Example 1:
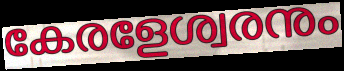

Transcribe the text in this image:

കേരളേശ്വരനും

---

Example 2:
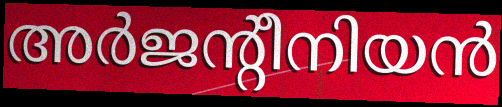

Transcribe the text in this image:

അർജന്റീനിയൻ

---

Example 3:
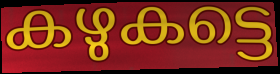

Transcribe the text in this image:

കഴുകട്ടെ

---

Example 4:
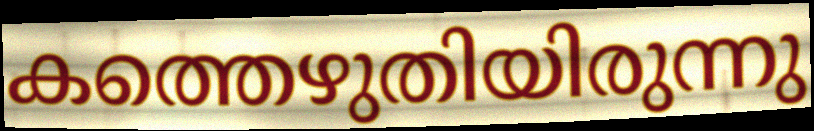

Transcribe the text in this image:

കത്തെഴുതിയിരുന്നു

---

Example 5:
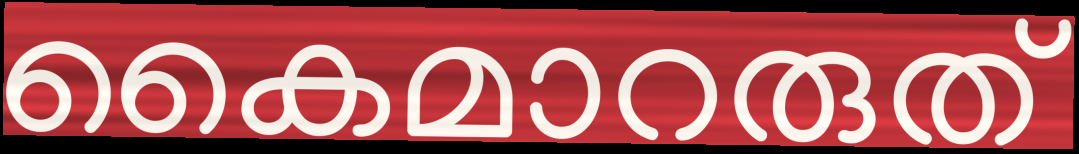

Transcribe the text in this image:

കൈമാറരുത്